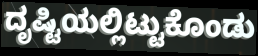
ದೃಷ್ಟಿಯಲ್ಲಿಟ್ಟುಕೊಂಡು